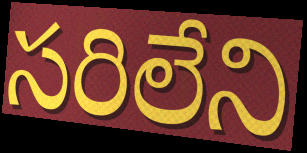
సరిలేని